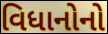
વિધાનોનો